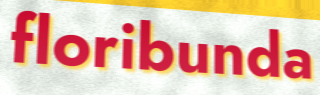
floribunda